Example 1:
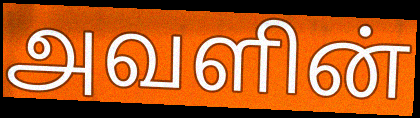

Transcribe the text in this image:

அவளின்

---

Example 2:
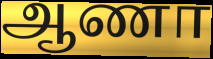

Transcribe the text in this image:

ஆணா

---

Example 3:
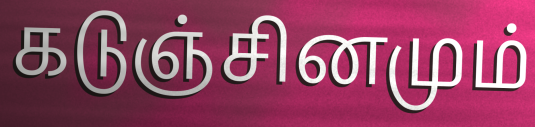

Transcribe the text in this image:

கடுஞ்சினமும்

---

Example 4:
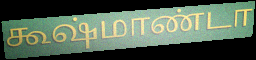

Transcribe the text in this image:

கூஷ்மாண்டா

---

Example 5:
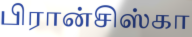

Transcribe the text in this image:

பிரான்சிஸ்கா